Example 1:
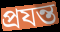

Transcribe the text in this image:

প্রযন্ত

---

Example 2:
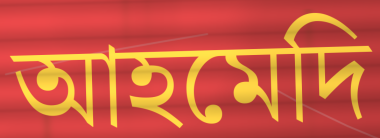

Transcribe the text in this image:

আহমেদি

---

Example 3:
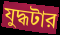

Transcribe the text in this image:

যুদ্ধটার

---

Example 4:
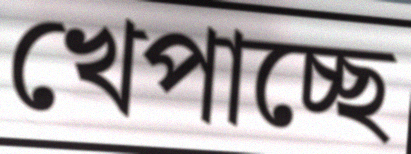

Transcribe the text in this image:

খেপাচ্ছে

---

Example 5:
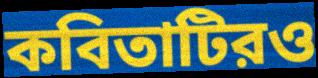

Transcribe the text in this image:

কবিতাটিরও